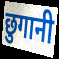
छुगानी